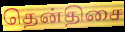
தென்திசை